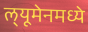
ल्यूमेनमध्ये